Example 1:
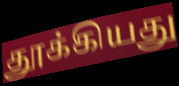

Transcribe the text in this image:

தூக்கியது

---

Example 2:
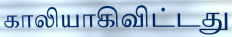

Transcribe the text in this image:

காலியாகிவிட்டது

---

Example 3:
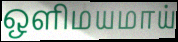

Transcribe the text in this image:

ஒளிமயமாய்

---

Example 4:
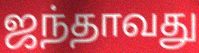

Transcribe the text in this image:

ஜந்தாவது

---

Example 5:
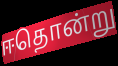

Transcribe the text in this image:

ஈதொன்று